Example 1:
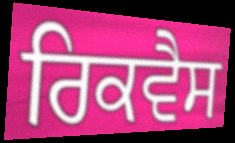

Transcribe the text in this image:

ਰਿਕਵੈਸ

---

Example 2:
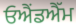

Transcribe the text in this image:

ਓਐਂਡਐੱਮ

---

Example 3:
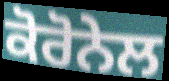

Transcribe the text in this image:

ਕੋਰੋਨੇਲ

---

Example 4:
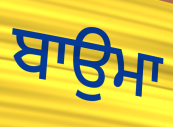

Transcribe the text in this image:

ਬਾਉਮਾ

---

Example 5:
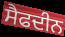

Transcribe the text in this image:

ਸੈਫਦੀਨ